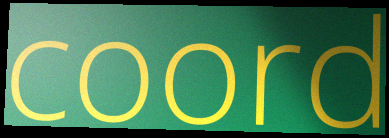
coord